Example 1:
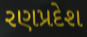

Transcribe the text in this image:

રણપ્રદેશ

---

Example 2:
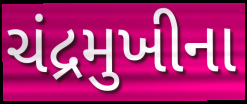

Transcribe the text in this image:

ચંદ્રમુખીના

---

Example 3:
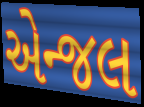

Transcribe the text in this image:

એન્જલ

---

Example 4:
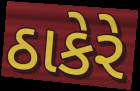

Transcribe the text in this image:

ઠાકેરે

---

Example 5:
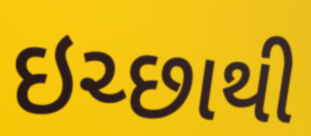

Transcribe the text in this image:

ઇચ્છાથી